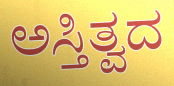
ಅಸ್ತಿತ್ವದ